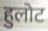
हुलोट